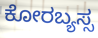
ಕೋರಬ್ಯಸ್ಸ